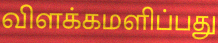
விளக்கமளிப்பது